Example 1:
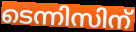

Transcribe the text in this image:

ടെന്നിസിന്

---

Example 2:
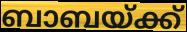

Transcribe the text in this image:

ബാബയ്ക്ക്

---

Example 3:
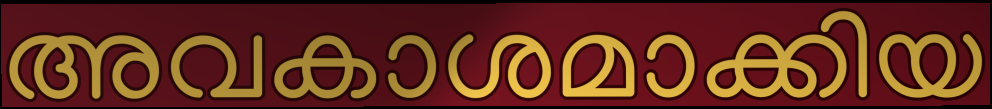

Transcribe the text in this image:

അവകാശമാക്കിയ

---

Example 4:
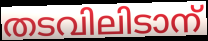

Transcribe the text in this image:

തടവിലിടാന്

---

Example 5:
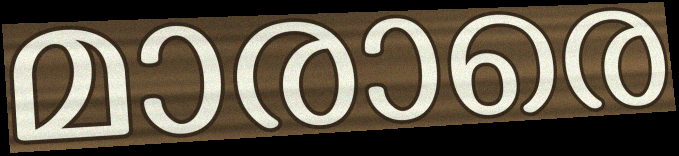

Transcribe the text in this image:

മാരാരെ